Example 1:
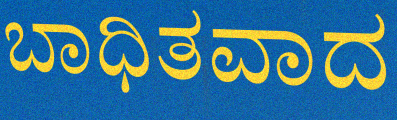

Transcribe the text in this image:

ಬಾಧಿತವಾದ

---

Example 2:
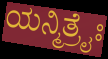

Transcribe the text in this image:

ಯನ್ಮಿತ್ರೈಃ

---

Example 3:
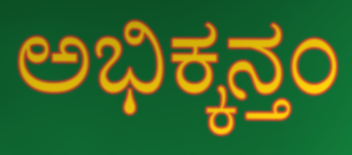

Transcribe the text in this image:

ಅಭಿಕ್ಕನ್ತಂ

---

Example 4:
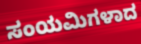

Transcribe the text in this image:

ಸಂಯಮಿಗಳಾದ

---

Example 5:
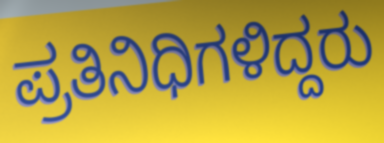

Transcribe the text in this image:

ಪ್ರತಿನಿಧಿಗಳಿದ್ದರು